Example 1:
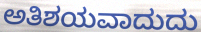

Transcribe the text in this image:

ಅತಿಶಯವಾದುದು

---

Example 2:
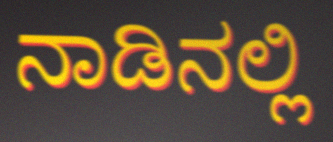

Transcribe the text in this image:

ನಾಡಿನಲ್ಲಿ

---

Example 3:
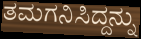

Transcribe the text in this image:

ತಮಗನಿಸಿದ್ದನ್ನು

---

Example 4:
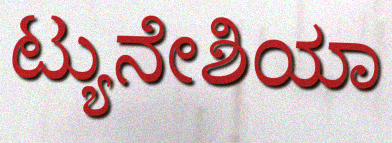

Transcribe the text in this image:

ಟ್ಯುನೇಶಿಯಾ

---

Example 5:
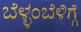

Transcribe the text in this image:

ಬೆಳ್ಳಂಬೆಳಿಗ್ಗೆ